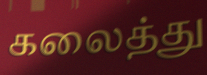
கலைத்து